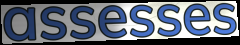
assesses